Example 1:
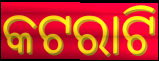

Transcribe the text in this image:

କଟରାଟି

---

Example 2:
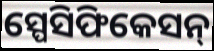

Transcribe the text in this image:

ସ୍ପେସିଫିକେସନ୍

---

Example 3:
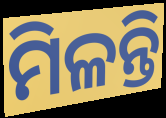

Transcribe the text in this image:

ମିଳନ୍ତି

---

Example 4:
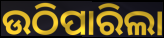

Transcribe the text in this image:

ଉଠିପାରିଲା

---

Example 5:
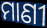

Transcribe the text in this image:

ମାଣୀ